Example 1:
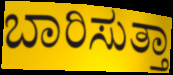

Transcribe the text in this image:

ಬಾರಿಸುತ್ತಾ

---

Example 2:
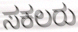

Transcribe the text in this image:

ಸಕಲರು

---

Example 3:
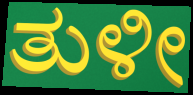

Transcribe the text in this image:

ತುಳೀ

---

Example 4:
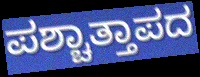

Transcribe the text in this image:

ಪಶ್ಚಾತ್ತಾಪದ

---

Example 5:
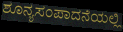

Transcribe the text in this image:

ಶೂನ್ಯಸಂಪಾದನೆಯಲ್ಲಿ